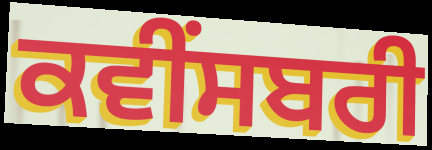
ਕਵੀਂਸਬਰੀ